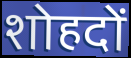
शोहदों